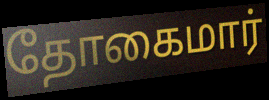
தோகைமார்